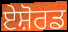
ਏਸ਼ੋਰਡ